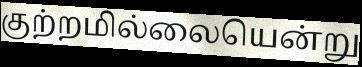
குற்றமில்லையென்று